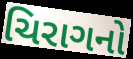
ચિરાગનો